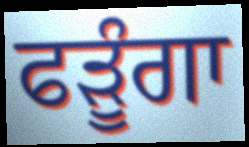
ਫੜੂੰਗਾ